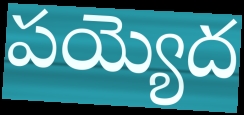
పయ్యెద